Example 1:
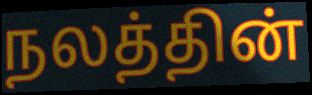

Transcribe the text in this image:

நலத்தின்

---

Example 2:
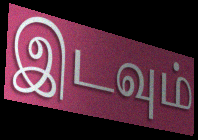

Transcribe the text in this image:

இடவும்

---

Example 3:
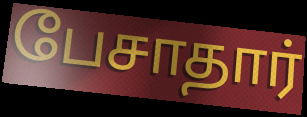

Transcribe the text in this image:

பேசாதார்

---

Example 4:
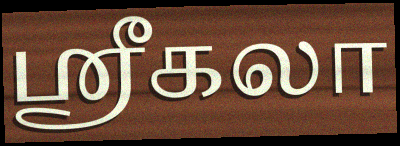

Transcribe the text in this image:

ஶ்ரீகலா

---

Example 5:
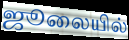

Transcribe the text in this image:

ஜூலையில்